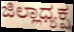
ಜಿಲ್ಲಾಧ್ಯಕ್ಷ